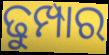
ଢୁମ୍ପାର